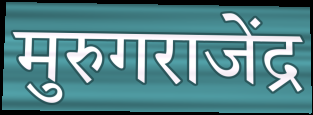
मुरुगराजेंद्र